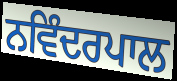
ਨਵਿੰਦਰਪਾਲ